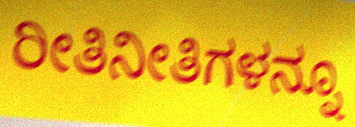
ರೀತಿನೀತಿಗಳನ್ನೂ